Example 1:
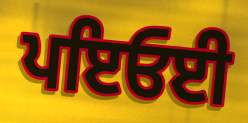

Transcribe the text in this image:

ਪਇਓਈ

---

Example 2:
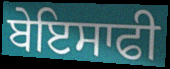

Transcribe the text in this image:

ਬੇਇਸਾਫੀ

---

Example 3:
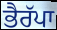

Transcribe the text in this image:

ਭੈਰੱਪਾ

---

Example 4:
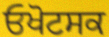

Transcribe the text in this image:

ਓਖੋਟਸਕ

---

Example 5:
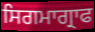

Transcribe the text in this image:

ਸਿਗਮਾਗ੍ਰਾਫ